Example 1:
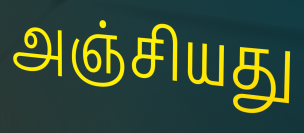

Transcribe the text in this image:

அஞ்சியது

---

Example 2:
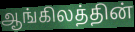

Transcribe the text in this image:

ஆங்கிலத்தின்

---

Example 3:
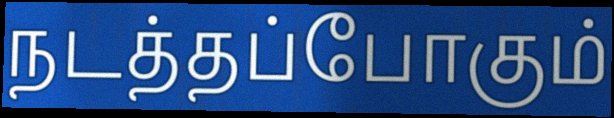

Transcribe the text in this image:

நடத்தப்போகும்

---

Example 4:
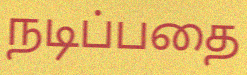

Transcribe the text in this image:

நடிப்பதை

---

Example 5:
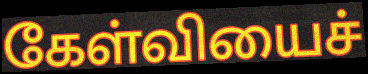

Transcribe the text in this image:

கேள்வியைச்